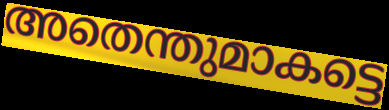
അതെന്തുമാകട്ടെ